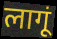
लागूं